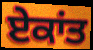
ਏਕਾਂਤ